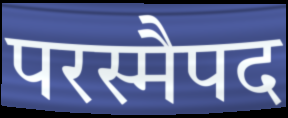
परस्मैपद